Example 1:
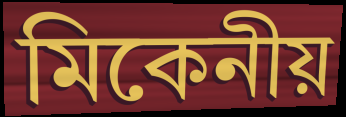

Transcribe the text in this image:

মিকেনীয়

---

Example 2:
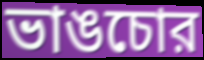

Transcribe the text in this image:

ভাঙচোর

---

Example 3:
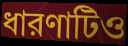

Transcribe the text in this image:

ধারণাটিও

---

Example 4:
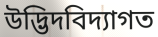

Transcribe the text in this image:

উদ্ভিদবিদ্যাগত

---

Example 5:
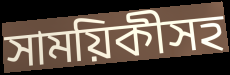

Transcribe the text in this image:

সাময়িকীসহ